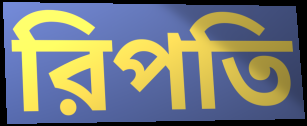
রিপতি